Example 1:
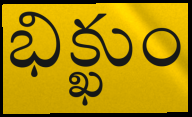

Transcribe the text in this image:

భిక్ఖుం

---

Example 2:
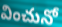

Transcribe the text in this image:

వించునో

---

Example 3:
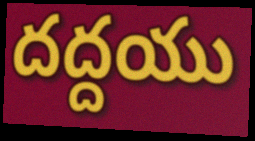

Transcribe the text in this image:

దద్దయు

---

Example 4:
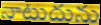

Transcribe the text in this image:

నాటుదును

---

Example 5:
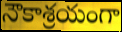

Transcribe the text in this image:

నౌకాశ్రయంగా